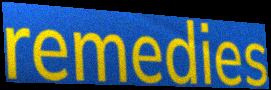
remedies